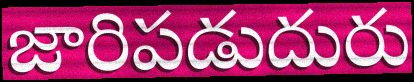
జారిపడుదురు